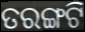
ତରଙ୍ଗଟି